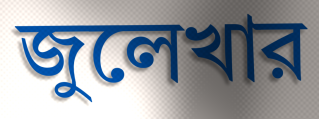
জুলেখার